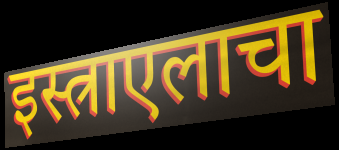
इस्त्राएलाचा